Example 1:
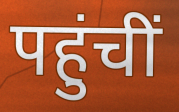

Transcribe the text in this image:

पहुंचीं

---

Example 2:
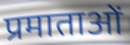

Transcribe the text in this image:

प्रमाताओं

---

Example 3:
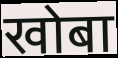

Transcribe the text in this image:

खोबा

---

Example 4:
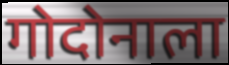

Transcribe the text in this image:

गोदोनाला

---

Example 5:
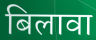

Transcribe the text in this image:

बिलावा